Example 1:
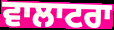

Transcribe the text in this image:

ਵਾਲਾਟਰਾ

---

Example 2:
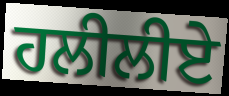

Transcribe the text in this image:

ਹਲੀਲੀਏ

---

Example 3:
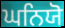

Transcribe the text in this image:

ਘਨਿਯੋ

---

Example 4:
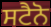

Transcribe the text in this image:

ਸਟੈਨੋ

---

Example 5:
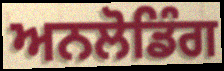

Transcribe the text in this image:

ਅਨਲੋਡਿੰਗ